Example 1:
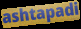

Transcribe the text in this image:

ashtapadi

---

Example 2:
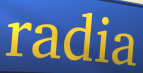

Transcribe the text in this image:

radia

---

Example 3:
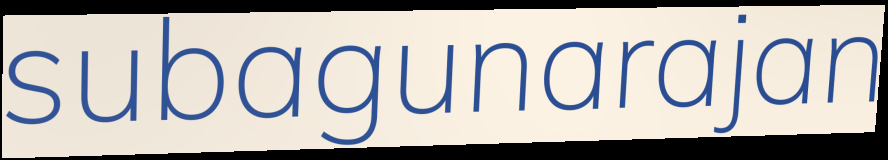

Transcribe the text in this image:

subagunarajan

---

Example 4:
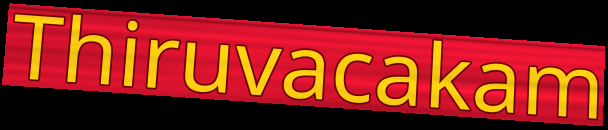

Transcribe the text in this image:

Thiruvacakam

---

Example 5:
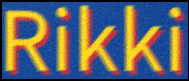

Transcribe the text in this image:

Rikki